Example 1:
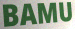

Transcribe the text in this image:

BAMU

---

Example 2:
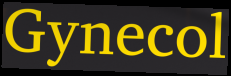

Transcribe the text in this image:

Gynecol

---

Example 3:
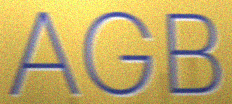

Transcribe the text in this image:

AGB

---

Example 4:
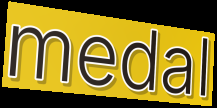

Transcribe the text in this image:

medal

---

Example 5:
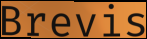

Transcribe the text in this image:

Brevis